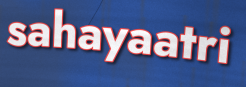
sahayaatri